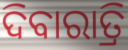
ଦିବାରାତ୍ରି